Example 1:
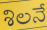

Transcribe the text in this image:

శిలనే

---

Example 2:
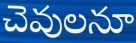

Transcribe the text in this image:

చెవులనూ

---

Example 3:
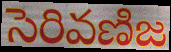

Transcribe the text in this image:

సెరివణిజ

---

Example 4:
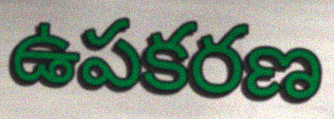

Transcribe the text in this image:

ఉపకరణ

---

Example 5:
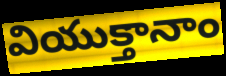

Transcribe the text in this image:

వియుక్తానాం